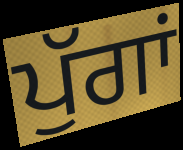
ਪੁੱਗਾਂ